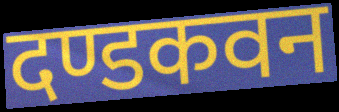
दण्डकवन